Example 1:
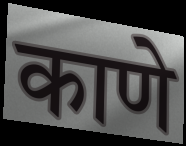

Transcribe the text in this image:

काणे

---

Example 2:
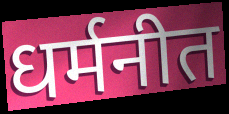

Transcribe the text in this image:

धर्मनीत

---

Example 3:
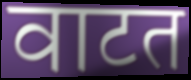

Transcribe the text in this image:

वाटत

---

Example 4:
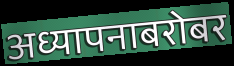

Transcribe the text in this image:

अध्यापनाबरोबर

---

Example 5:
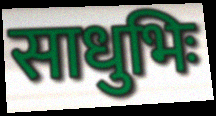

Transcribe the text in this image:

साधुभिः